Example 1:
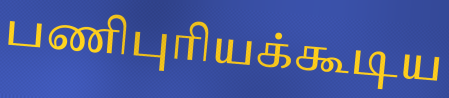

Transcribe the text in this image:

பணிபுரியக்கூடிய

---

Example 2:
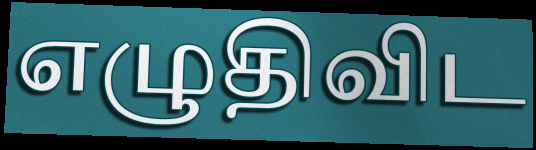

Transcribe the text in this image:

எழுதிவிட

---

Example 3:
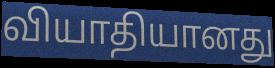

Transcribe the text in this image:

வியாதியானது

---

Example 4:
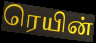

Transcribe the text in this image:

ரெயின்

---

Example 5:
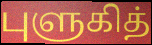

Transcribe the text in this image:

புளுகித்